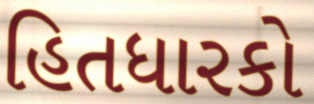
હિતધારકો